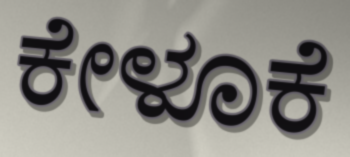
ಕೇಳೂಕೆ